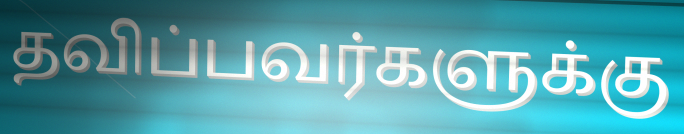
தவிப்பவர்களுக்கு